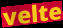
velte